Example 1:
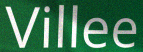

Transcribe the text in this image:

Villee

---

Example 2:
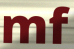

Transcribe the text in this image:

mf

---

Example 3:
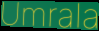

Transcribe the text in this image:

Umrala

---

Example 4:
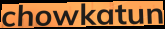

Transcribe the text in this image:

chowkatun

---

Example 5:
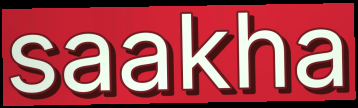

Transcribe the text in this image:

saakha